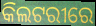
କିଲଟରୀରେ